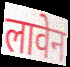
लावेन